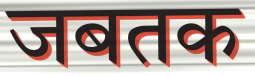
जबतक